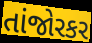
તાંજોરકર